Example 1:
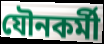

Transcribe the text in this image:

যৌনকর্মী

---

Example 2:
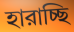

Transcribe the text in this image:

হারাচ্ছি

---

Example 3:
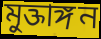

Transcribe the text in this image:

মুক্তাঙ্গন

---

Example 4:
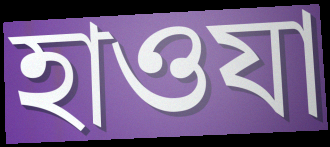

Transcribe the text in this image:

হাওযা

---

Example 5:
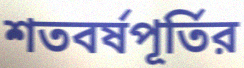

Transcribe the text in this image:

শতবর্ষপূর্তির